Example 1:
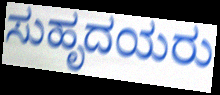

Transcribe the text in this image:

ಸುಹೃದಯರು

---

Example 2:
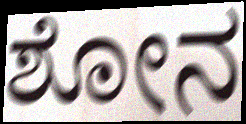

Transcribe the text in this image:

ಶೋನ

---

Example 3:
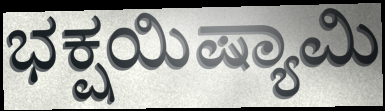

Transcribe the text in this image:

ಭಕ್ಷಯಿಷ್ಯಾಮಿ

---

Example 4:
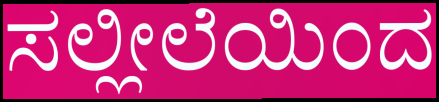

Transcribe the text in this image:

ಸಲ್ಲೀಲೆಯಿಂದ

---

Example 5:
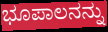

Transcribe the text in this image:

ಭೂಪಾಲನನ್ನು